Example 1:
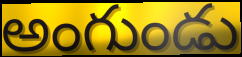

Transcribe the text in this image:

అంగుండు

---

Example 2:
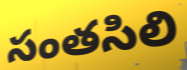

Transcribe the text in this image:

సంతసిలి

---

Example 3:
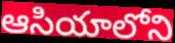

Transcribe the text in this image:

ఆసియాలోని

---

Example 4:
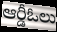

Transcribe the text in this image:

ఆర్డీఓలు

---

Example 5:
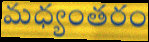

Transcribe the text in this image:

మధ్యంతరం